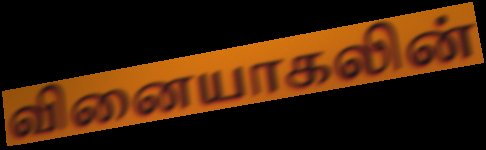
வினையாகலின்